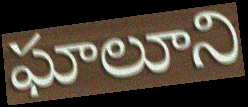
ఘాలూని